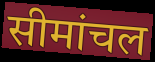
सीमांचल